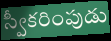
స్వీకరింపుడు